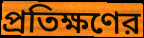
প্রতিক্ষণের